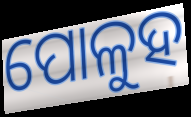
ପୋଳୁହ